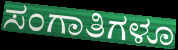
ಸಂಗಾತಿಗಳೂ